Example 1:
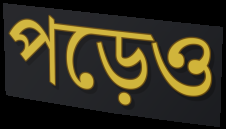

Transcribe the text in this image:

পড়েও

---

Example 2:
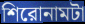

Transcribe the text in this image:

শিরোনামটা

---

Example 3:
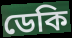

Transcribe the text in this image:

ডেকি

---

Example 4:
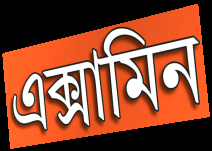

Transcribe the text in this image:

এক্সামিন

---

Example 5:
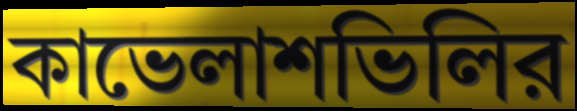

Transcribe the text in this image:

কাভেলাশভিলির